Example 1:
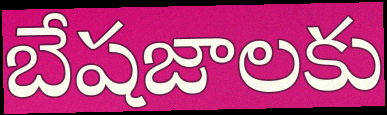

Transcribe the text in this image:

బేషజాలకు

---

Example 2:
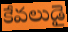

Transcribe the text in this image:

కేవలుడై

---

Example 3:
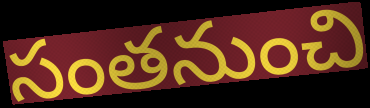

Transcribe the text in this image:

సంతనుంచి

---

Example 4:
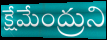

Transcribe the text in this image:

క్షేమేంద్రుని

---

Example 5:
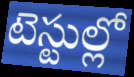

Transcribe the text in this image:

టెస్టుల్లో